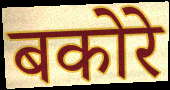
बकोरे